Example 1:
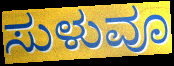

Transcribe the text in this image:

ಸುಳುವೂ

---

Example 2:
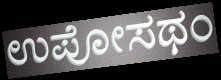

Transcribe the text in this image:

ಉಪೋಸಥಂ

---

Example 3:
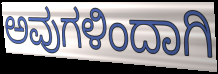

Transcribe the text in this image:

ಅವುಗಳಿಂದಾಗಿ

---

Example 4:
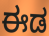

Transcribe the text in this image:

ಈಡ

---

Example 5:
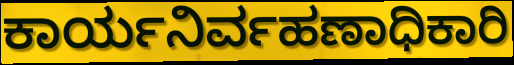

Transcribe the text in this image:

ಕಾರ್ಯನಿರ್ವಹಣಾಧಿಕಾರಿ